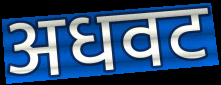
अधवट